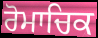
ਰੋਮਾਚਿਕ